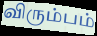
விரும்பம்